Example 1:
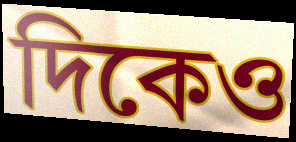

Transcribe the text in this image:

দিকেও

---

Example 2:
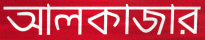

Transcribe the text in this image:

আলকাজার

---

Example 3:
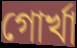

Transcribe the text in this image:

গোর্খা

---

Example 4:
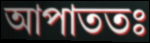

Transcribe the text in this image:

আপাততঃ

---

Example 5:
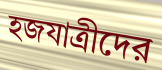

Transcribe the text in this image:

হজযাত্রীদের